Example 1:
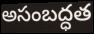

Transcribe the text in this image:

అసంబద్ధత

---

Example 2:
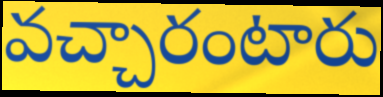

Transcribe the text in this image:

వచ్చారంటారు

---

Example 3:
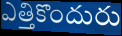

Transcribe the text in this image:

ఎత్తికొందురు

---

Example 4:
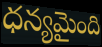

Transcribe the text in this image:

ధన్యమైంది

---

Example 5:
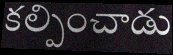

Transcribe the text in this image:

కల్పించాడు